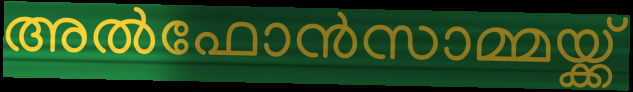
അൽഫോൻസാമ്മയ്ക്ക്